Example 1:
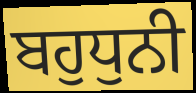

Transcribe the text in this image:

ਬਹੁਧੁਨੀ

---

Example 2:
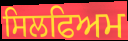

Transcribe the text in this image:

ਸਿਲਫਿਅਮ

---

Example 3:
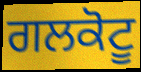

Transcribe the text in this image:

ਗਲਕੋਟੂ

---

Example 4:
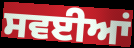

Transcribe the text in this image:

ਸਵਈਆਂ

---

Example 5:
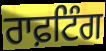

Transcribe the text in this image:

ਰਾਫ਼ਟਿੰਗ